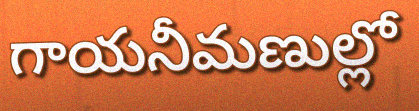
గాయనీమణుల్లో